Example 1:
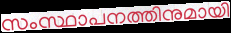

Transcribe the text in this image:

സംസ്ഥാപനത്തിനുമായി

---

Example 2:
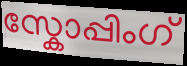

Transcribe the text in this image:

സ്കോപ്പിംഗ്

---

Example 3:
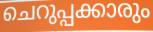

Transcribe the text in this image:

ചെറുപ്പക്കാരും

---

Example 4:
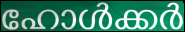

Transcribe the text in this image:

ഹോൾക്കർ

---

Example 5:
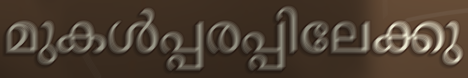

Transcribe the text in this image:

മുകൾപ്പരപ്പിലേക്കു